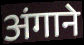
अंगाने